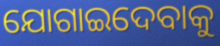
ଯୋଗାଇଦେବାକୁ